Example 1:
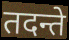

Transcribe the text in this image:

तदन्ते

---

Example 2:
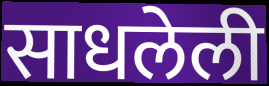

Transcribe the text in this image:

साधलेली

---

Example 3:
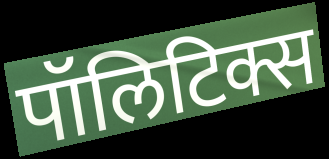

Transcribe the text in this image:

पॉलिटिक्स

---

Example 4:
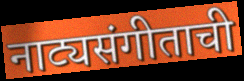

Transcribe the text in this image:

नाट्यसंगीताची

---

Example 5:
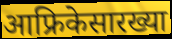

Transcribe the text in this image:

आफ्रिकेसारख्या